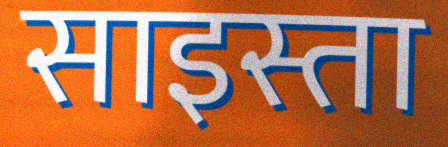
साइस्ता